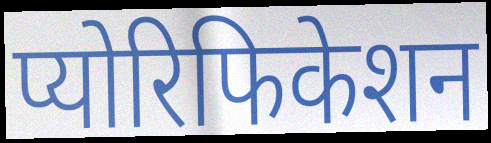
प्योरिफिकेशन